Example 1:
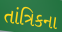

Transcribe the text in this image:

તાંત્રિકના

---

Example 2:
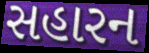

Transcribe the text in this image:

સહારન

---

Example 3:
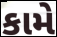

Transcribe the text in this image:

કામે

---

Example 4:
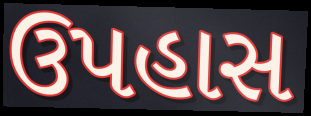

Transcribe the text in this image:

ઉપહાસ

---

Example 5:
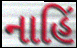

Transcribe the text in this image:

નાહિં